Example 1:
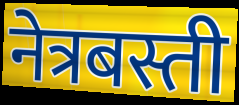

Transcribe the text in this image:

नेत्रबस्ती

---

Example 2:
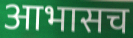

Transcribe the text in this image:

आभासच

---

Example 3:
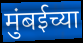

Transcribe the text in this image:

मुंबईच्या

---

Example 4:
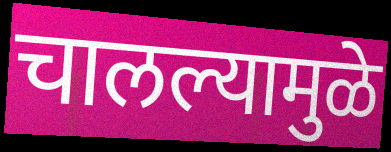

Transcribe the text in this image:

चालल्यामुळे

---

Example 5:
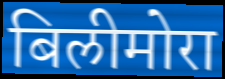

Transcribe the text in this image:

बिलीमोरा